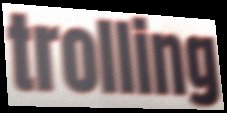
trolling